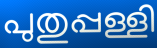
പുതുപ്പള്ളി